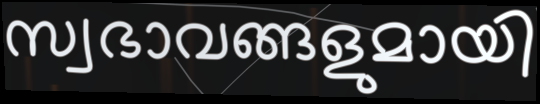
സ്വഭാവങ്ങളുമായി